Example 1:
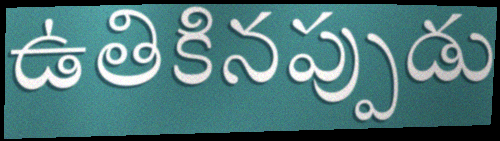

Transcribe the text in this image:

ఉతికినప్పుడు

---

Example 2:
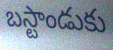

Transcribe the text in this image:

బస్టాండుకు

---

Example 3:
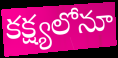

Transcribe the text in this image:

కక్ష్యలోనూ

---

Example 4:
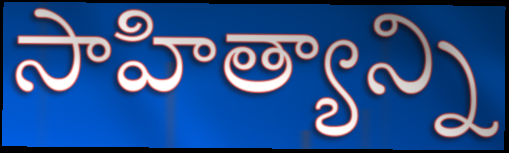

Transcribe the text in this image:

సాహిత్యాన్ని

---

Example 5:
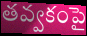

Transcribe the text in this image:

తవ్వకంపై